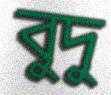
বুদু